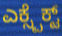
ಎಕ್ಸ್ಪೆಕ್ಟ್